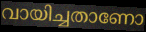
വായിച്ചതാണോ